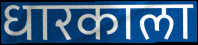
धारकाला